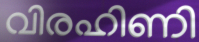
വിരഹിണി